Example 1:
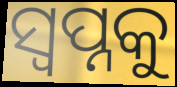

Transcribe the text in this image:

ସ୍ୱପ୍ନକୁ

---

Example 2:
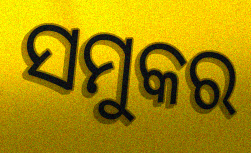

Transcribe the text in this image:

ସମୁକର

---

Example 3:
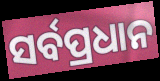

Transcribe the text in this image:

ସର୍ବପ୍ରଧାନ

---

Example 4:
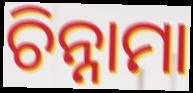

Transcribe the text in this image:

ଚିନ୍ନାମା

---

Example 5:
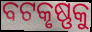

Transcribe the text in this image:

ବଟକୃଷ୍ଣକୁ